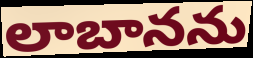
లాబానను